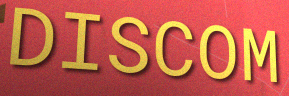
DISCOM